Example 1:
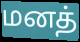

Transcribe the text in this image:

மனத்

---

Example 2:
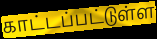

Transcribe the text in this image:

காட்டப்பட்டுள்ள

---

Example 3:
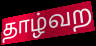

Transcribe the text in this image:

தாழ்வற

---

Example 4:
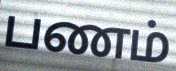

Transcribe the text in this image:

பணம்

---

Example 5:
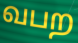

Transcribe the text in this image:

வபற